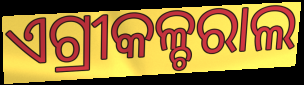
ଏଗ୍ରୀକଳ୍ଚରାଲ